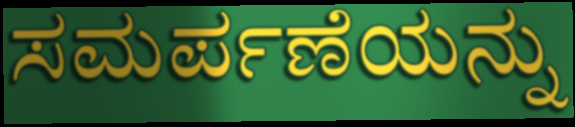
ಸಮರ್ಪಣೆಯನ್ನು